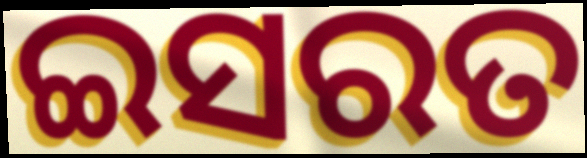
ଇସରତ